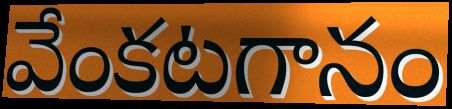
వేంకటగానం